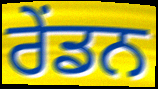
ਰੇਂਡਨ